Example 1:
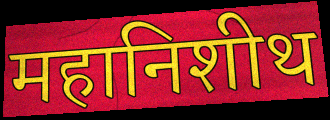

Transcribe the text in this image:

महानिशीथ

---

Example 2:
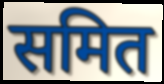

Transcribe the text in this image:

समित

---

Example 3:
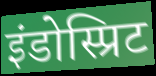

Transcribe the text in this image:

इंडोस्प्रिट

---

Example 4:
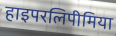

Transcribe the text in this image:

हाइपरलिपीमिया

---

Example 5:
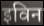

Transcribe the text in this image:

इविन